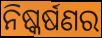
ନିଷ୍କର୍ଷଣର